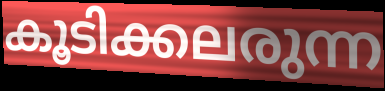
കൂടിക്കലരുന്ന